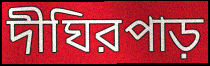
দীঘিরপাড়